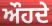
ਔਹਦੇ